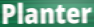
Planter